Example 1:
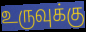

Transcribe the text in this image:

உருவுக்கு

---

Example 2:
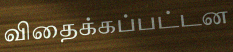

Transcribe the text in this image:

விதைக்கப்பட்டன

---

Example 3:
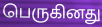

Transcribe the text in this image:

பெருகினது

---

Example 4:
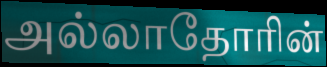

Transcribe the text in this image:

அல்லாதோரின்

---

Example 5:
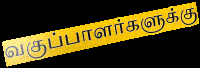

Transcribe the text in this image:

வகுப்பாளர்களுக்கு